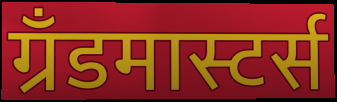
ग्रँडमास्टर्स